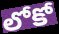
లోకో